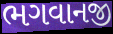
ભગવાનજી